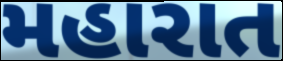
મહારાત